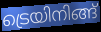
ട്രെയിനിങ്ങ്